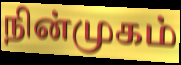
நின்முகம்